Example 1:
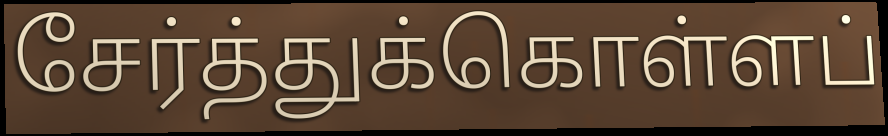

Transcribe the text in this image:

சேர்த்துக்கொள்ளப்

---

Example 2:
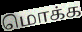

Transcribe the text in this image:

மொக்க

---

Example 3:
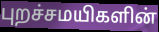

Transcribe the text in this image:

புறச்சமயிகளின்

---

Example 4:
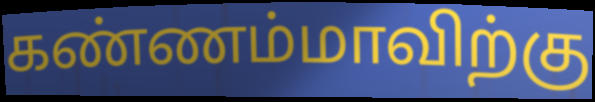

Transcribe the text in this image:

கண்ணம்மாவிற்கு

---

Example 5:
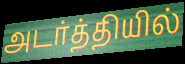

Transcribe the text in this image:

அடர்த்தியில்